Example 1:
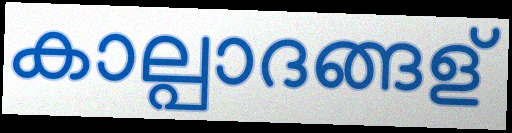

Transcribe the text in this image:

കാല്പാദങ്ങള്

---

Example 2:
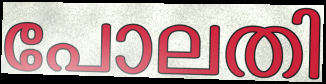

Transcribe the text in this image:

പോലതി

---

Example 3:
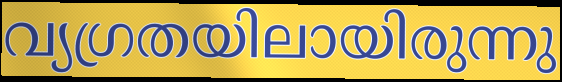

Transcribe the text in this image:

വ്യഗ്രതയിലായിരുന്നു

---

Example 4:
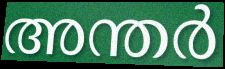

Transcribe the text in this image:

അന്തർ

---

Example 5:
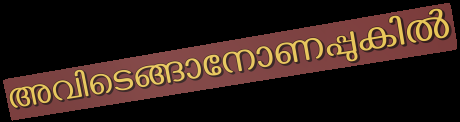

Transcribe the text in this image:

അവിടെങ്ങാനോണപ്പുകിൽ